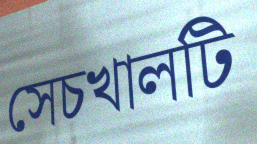
সেচখালটি